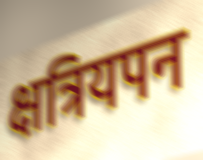
क्षत्रियपन